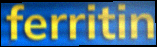
ferritin